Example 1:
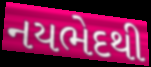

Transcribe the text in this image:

નયભેદથી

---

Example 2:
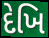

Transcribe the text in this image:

દેખિ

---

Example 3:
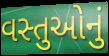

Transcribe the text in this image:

વસ્તુઓનું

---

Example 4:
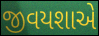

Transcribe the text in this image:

જીવયશાએ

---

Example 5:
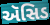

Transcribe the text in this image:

ઍસિડ